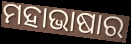
ମହାଭାଷାର